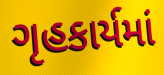
ગૃહકાર્યમાં